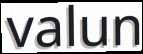
valun